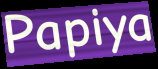
Papiya